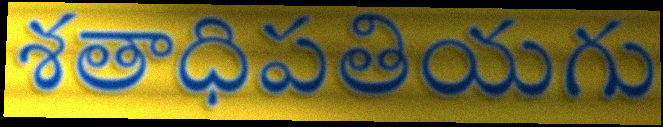
శతాధిపతియగు